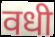
वधी